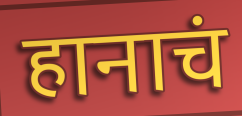
हानाचं